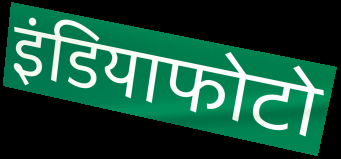
इंडियाफोटो